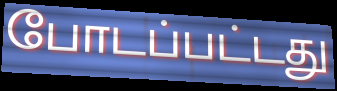
போடப்பட்டது